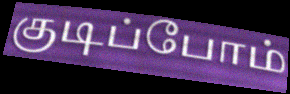
குடிப்போம்